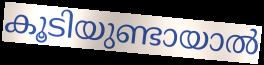
കൂടിയുണ്ടായാൽ